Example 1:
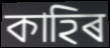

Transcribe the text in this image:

কাহিৰ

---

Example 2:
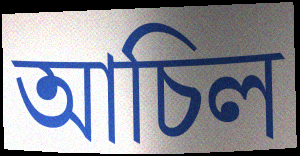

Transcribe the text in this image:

আচিল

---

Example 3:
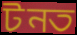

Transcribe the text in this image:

টনত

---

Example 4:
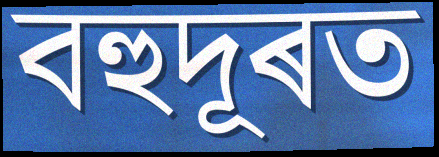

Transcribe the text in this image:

বহুদূৰত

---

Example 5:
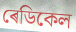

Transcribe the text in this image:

ৰেডিকেল